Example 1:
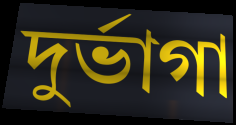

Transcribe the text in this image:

দুর্ভাগা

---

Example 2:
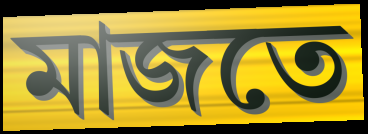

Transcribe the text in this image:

মাজতে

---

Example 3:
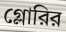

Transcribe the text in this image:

গ্লোরির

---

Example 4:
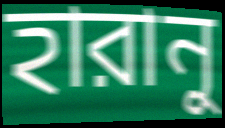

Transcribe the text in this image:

হারানু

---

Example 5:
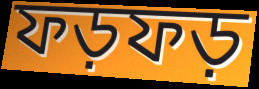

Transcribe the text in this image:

ফড়ফড়